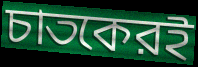
চাতকেরই